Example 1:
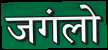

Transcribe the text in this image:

जगंलो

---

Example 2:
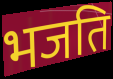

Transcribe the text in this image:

भजति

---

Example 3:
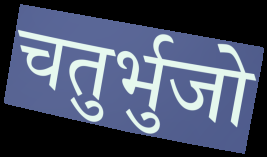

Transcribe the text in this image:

चतुर्भुजो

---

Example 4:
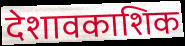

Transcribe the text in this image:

देशावकाशिक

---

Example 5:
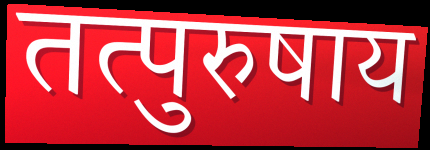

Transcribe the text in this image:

तत्पुरुषाय